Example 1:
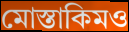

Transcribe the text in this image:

মোস্তাকিমও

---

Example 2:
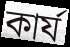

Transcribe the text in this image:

কার্য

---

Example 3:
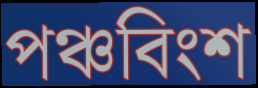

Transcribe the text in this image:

পঞ্চবিংশ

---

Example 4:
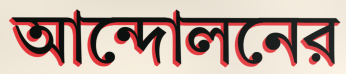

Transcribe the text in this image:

আন্দোলনের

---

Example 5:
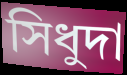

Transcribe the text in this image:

সিধুদা